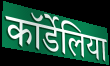
कॉर्डेलिया